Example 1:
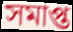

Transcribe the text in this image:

সমাপ্ত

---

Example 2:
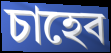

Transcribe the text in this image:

চাহেব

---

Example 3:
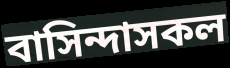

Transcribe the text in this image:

বাসিন্দাসকল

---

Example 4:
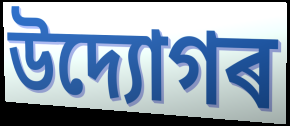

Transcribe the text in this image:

উদ্যোগৰ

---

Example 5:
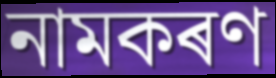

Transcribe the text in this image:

নামকৰণ